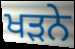
ਖੜਨੇ